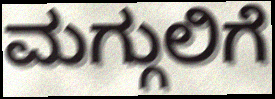
ಮಗ್ಗುಲಿಗೆ